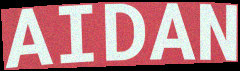
AIDAN